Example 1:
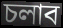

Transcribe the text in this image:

চলাব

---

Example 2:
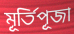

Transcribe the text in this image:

মূৰ্তিপূজা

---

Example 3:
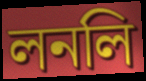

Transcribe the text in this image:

লনলি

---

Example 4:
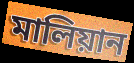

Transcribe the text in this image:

মালিয়ান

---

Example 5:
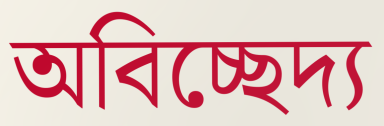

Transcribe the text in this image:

অবিচ্ছেদ্য